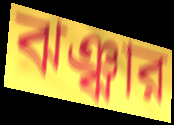
ঝঞ্ঝার